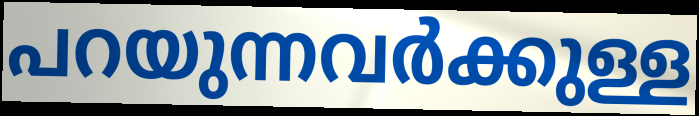
പറയുന്നവർക്കുള്ള